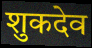
शुकदेव